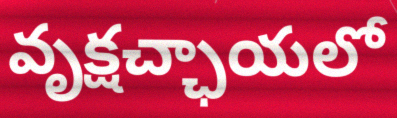
వృక్షచ్ఛాయలో